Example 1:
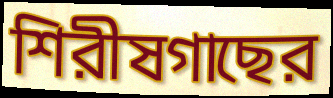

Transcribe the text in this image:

শিরীষগাছের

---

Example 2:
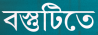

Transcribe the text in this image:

বস্তুটিতে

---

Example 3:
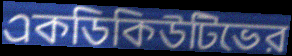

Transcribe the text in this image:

একডিকিউটিভের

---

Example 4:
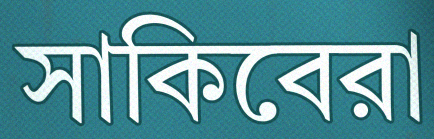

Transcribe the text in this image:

সাকিবেরা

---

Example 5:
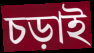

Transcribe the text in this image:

চড়াই